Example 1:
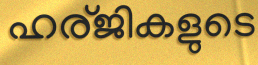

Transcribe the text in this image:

ഹര്ജികളുടെ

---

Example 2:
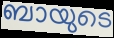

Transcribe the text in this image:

ബായുടെ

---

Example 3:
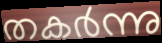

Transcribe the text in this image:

തകർന്നു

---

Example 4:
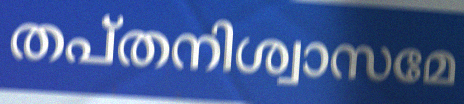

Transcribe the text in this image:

തപ്തനിശ്വാസമേ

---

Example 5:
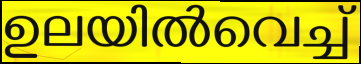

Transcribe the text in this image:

ഉലയിൽവെച്ച്